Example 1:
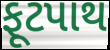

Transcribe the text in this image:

ફૂટપાથ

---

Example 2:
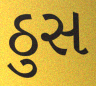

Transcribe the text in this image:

ઠુસ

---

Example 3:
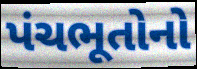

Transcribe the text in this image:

પંચભૂતોનો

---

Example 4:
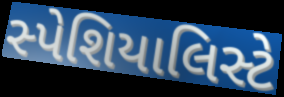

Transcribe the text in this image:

સ્પેશિયાલિસ્ટે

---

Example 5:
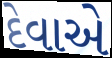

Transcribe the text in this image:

દેવાએ